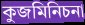
কুজমিনিচনা